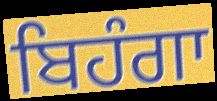
ਬਿਹੰਗਾ